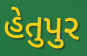
હેતુપુર